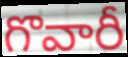
గొవారీ